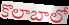
కొలాబాలో